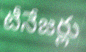
టీనేజర్లు